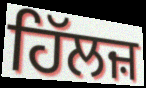
ਹਿੱਲਜ਼